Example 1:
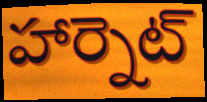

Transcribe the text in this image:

హార్నెట్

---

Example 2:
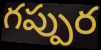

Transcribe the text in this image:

గప్పుర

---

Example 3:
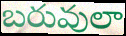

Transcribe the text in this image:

బరువులా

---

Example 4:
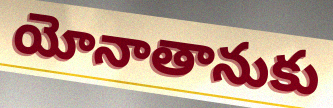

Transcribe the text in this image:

యోనాతానుకు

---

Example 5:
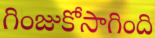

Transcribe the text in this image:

గింజుకోసాగింది